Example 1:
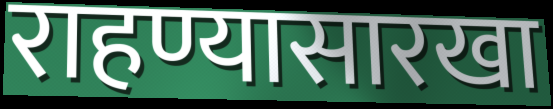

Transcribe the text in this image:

राहण्यासारखा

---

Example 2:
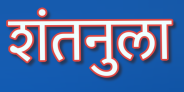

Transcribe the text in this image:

शंतनुला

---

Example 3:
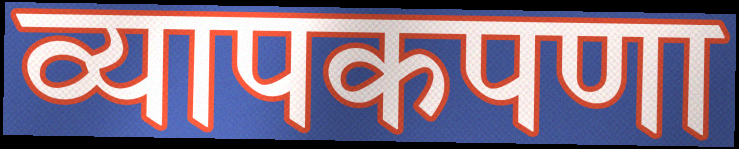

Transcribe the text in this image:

व्यापकपणा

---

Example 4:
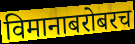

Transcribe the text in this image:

विमानाबरोबरच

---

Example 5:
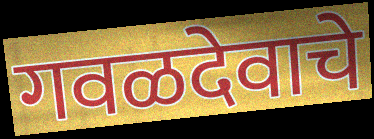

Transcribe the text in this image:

गवळदेवाचे